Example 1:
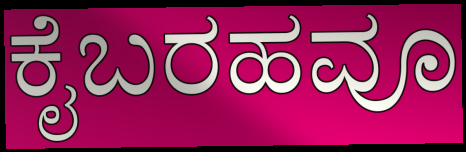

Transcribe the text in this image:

ಕೈಬರಹವೂ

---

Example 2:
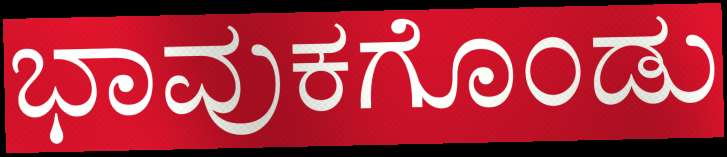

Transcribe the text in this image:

ಭಾವುಕಗೊಂಡು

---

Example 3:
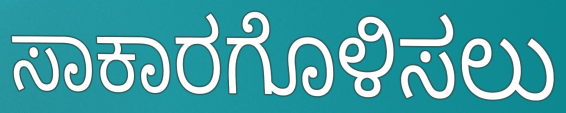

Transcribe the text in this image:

ಸಾಕಾರಗೊಳಿಸಲು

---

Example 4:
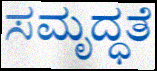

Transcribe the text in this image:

ಸಮೃದ್ಧತೆ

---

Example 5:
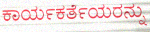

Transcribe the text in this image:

ಕಾರ್ಯಕರ್ತೆಯರನ್ನು